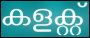
കളക്റ്റ്